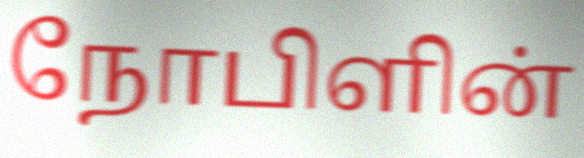
நோபிளின்